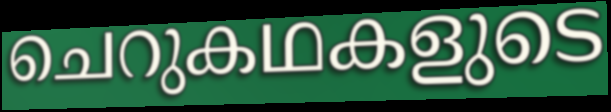
ചെറുകഥകളുടെ